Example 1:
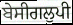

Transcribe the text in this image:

ਬੇਸੀਗਲੁਪੀ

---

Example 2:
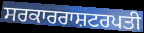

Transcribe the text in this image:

ਸਰਕਾਰਰਾਸ਼ਟਰਪਤੀ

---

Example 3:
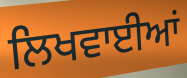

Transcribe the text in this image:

ਲਿਖਵਾਈਆਂ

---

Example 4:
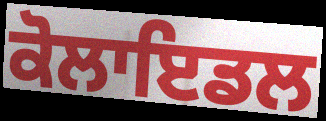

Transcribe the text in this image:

ਕੋਲਾਇਡਲ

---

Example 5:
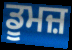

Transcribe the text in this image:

ਡੂਮਜ਼